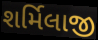
શર્મિલાજી